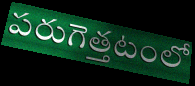
పరుగెత్తటంలో